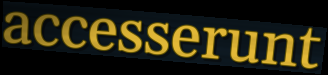
accesserunt